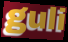
guli